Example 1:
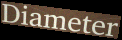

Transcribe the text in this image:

Diameter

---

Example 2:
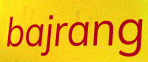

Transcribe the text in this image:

bajrang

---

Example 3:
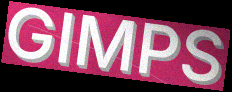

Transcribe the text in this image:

GIMPS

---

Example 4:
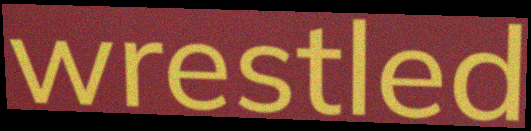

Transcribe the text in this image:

wrestled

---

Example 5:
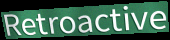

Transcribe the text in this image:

Retroactive